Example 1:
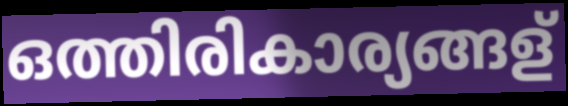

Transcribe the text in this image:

ഒത്തിരികാര്യങ്ങള്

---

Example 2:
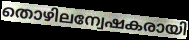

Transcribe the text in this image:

തൊഴിലന്വേഷകരായി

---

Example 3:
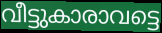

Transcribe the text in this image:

വീട്ടുകാരാവട്ടെ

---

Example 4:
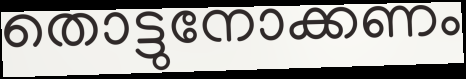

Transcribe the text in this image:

തൊട്ടുനോക്കണം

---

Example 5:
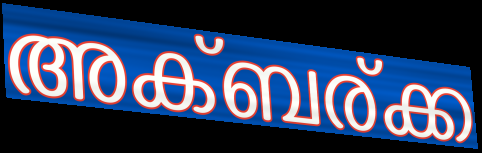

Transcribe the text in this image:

അക്ബര്ക്ക